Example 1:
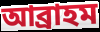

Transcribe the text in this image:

আব্ৰাহম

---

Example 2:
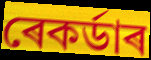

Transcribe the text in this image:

ৰেকৰ্ডাৰ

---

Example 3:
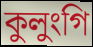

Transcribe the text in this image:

কুলুংগি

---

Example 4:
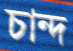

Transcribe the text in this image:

চান্দ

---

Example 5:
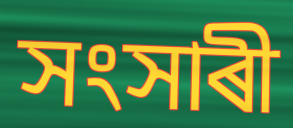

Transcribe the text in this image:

সংসাৰী